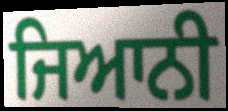
ਜਿਆਨੀ